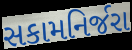
સકામનિર્જરા